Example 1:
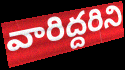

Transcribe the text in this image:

వారిద్దరిని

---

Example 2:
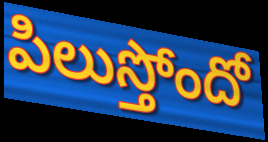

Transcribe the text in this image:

పిలుస్తోందో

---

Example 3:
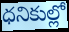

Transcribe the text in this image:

ధనికుల్లో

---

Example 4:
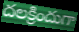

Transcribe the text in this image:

దలక్రిందుగా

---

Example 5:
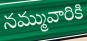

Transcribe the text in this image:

నమ్మువారికి